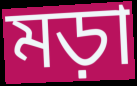
মড়া